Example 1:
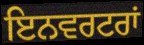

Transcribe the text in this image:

ਇਨਵਰਟਰਾਂ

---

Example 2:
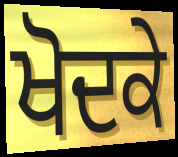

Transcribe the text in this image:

ਖੋਦਕੇ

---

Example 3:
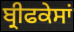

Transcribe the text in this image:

ਬ੍ਰੀਫਕੇਸਾਂ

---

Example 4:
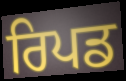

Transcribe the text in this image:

ਰਿਪਡ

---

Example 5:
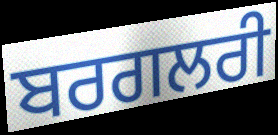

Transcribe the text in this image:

ਬਰਗਲਰੀ